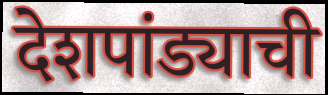
देशपांड्याची